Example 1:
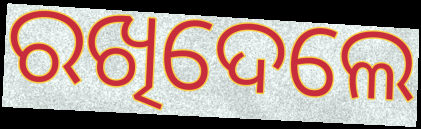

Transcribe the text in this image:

ରଖିଦେଲେ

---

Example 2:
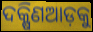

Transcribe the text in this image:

ଦକ୍ଷିଣଆଡ଼କୁ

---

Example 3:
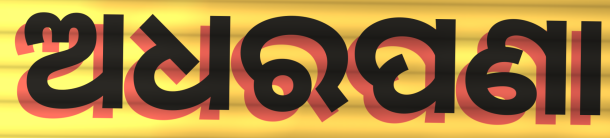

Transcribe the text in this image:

ଅଧରପଣା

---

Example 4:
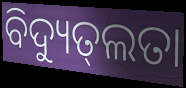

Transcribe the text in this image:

ବିଦ୍ୟୁତ୍‌ଲତା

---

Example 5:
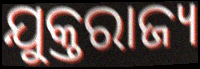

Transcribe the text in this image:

ଯୁକ୍ତରାଜ୍ୟ